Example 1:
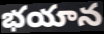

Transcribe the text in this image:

భయాన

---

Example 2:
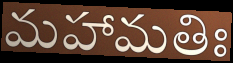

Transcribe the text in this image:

మహామతిః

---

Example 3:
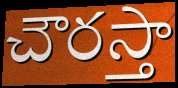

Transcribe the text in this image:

చౌరస్తా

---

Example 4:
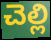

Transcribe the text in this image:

చెల్లి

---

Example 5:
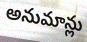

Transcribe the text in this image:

అనుమాన్లు